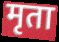
मृता